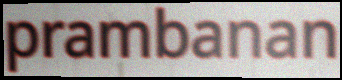
prambanan